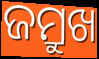
ଜମ୍ରୁଖ